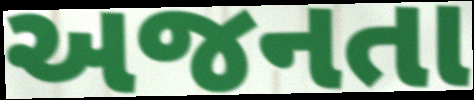
અજનતા